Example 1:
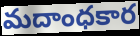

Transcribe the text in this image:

మదాంధకార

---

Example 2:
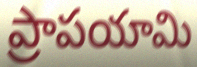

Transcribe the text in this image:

ప్రాపయామి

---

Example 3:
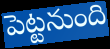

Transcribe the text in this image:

పెట్టనుంది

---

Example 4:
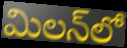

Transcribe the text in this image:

మిలన్‌లో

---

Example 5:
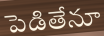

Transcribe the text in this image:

పెడితేనూ